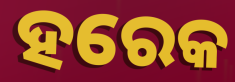
ହରେକ